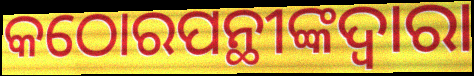
କଠୋରପନ୍ଥୀଙ୍କଦ୍ୱାରା